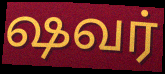
ஷவர்